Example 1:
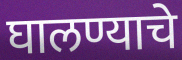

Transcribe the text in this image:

घालण्याचे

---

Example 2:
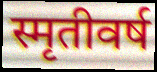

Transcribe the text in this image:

स्मृतीवर्ष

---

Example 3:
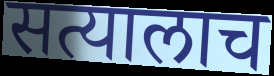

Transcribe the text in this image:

सत्यालाच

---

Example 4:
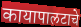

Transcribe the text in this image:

कायापालटाचे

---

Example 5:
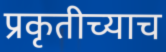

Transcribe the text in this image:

प्रकृतीच्याच